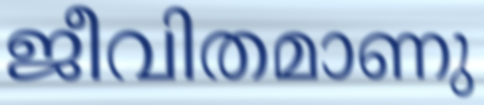
ജീവിതമാണു